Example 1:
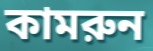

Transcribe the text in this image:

কামরুন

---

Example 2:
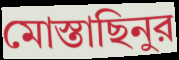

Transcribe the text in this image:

মোস্তাছিনুর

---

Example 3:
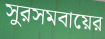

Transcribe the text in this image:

সুরসমবায়ের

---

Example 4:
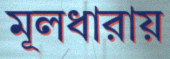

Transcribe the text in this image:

মূলধারায়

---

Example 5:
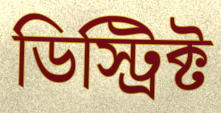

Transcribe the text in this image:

ডিস্ট্রিক্ট